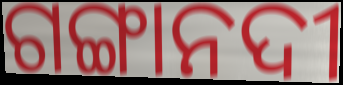
ଗଙ୍ଗାନଦୀ